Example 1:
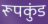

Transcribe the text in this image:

रूपकुंड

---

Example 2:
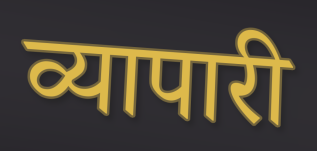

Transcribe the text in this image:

व्यापारी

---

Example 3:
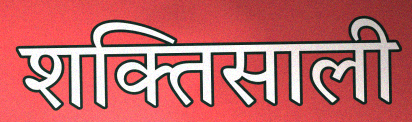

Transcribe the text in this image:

शक्तिसाली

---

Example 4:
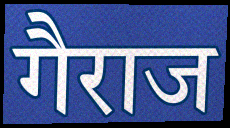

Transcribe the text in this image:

गैराज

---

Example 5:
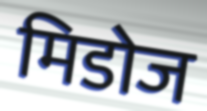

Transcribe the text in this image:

मिडोज